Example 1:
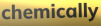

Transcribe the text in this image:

chemically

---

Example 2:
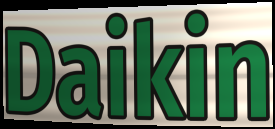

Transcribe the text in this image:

Daikin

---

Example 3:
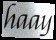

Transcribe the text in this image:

haay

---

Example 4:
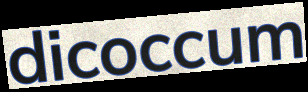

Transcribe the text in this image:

dicoccum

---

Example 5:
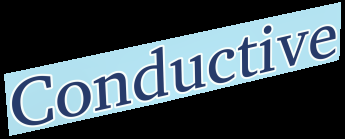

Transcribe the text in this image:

Conductive